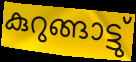
കുറുങ്ങാട്ടു്